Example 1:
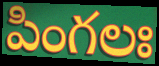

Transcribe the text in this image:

పింగలః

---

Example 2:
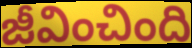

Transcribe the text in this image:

జీవించింది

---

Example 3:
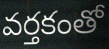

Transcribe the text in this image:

వర్తకంతో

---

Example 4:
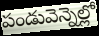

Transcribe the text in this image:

పండువెన్నెల్లో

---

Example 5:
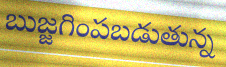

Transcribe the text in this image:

బుజ్జగింపబడుతున్న